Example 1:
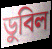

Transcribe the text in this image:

ডুবিল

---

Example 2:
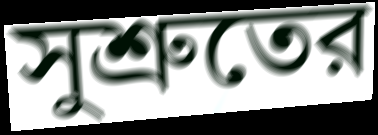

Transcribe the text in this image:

সুশ্রুতের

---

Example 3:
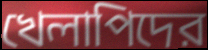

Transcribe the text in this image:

খেলাপিদের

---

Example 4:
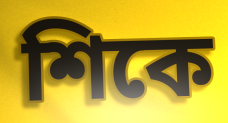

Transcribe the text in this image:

শিকে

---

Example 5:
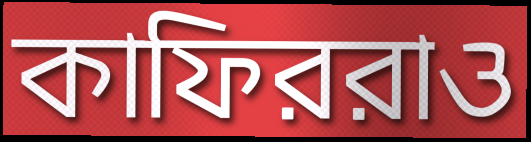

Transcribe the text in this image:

কাফিররাও